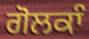
ਗੋਲਕਾੰ